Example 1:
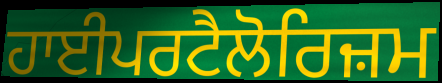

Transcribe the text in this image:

ਹਾਈਪਰਟੈਲੋਰਿਜ਼ਮ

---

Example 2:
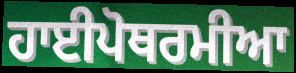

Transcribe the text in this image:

ਹਾਈਪੋਥਰਮੀਆ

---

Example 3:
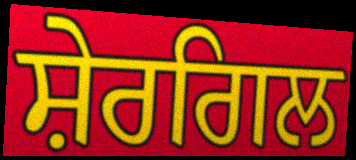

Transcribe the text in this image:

ਸ਼ੇਰਗਿਲ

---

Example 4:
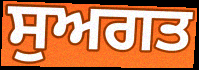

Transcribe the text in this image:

ਸੁਅਗਤ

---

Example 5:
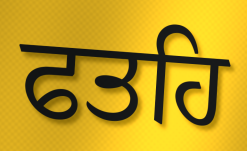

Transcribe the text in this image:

ਫਤਹਿ